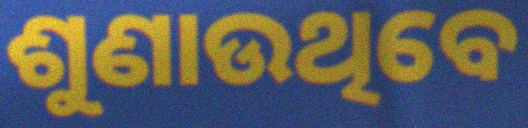
ଶୁଣାଉଥିବେ